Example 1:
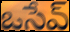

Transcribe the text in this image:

ఒసేవ్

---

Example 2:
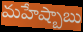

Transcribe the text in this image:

మహేష్బాబు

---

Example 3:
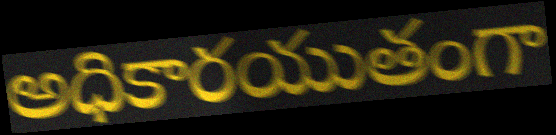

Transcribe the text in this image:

అధికారయుతంగా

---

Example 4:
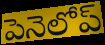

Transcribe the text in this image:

పెనెలోప్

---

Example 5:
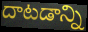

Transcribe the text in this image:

దాటడాన్ని